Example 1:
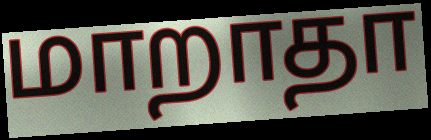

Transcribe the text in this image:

மாறாதா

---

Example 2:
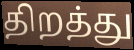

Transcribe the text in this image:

திறத்து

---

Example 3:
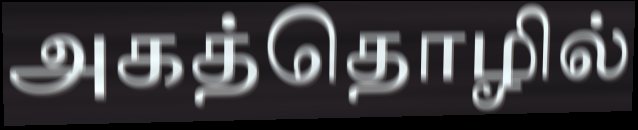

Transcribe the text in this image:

அகத்தொழில்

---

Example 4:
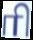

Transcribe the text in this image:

ரி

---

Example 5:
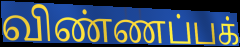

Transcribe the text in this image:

விண்ணப்பக்